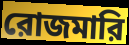
রোজমারি